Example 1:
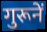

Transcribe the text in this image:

गुरूनें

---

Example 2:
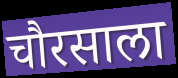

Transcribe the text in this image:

चौरसाला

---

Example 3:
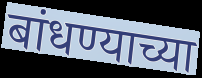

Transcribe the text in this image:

बांधण्याच्या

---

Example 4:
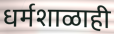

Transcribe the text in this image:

धर्मशाळाही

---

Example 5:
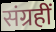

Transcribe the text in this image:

संग्रहीं